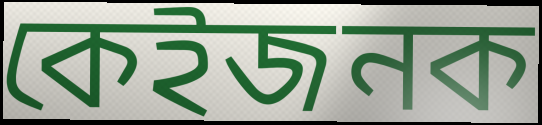
কেইজনক